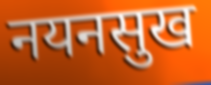
नयनसुख